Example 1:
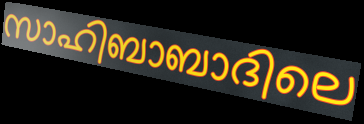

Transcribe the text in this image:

സാഹിബാബാദിലെ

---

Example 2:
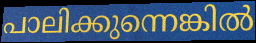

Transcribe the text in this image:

പാലിക്കുന്നെങ്കിൽ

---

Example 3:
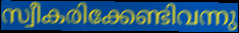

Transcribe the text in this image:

സ്വീകരിക്കേണ്ടിവന്നു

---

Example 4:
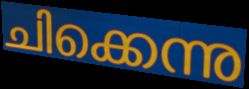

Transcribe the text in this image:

ചിക്കെന്നു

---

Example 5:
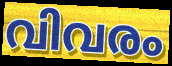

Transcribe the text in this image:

വിവരം